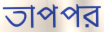
তাপপর